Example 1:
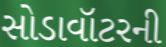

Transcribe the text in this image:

સોડાવૉટરની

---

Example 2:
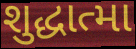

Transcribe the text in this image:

શુદ્ધાત્મા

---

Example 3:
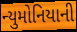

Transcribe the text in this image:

ન્યુમોનિયાની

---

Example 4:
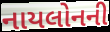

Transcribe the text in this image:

નાયલોનની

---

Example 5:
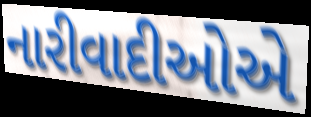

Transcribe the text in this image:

નારીવાદીઓએ